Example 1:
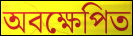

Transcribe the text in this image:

অবক্ষেপিত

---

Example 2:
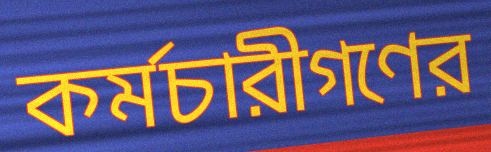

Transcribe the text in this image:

কর্মচারীগণের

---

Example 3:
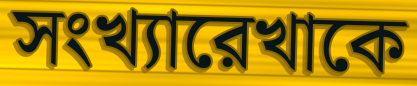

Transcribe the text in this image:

সংখ্যারেখাকে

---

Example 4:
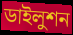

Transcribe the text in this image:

ডাইলুশন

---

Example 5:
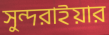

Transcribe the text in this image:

সুন্দরাইয়ার